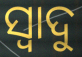
ସ୍ଵାଦୁ